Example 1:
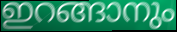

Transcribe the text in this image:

ഇറങ്ങാനും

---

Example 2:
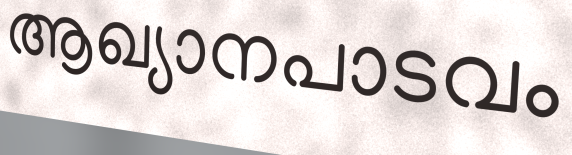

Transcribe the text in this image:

ആഖ്യാനപാടവം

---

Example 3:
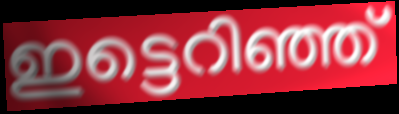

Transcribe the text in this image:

ഇട്ടെറിഞ്ഞ്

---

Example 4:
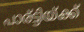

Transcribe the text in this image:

പാര്ട്ടിയ്ക്ക്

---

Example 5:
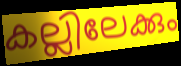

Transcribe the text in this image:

കല്ലിലേക്കും